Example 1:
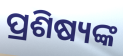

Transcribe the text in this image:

ପ୍ରଶିଷ୍ୟଙ୍କ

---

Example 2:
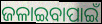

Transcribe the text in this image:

ଜଳାଇବାପାଇଁ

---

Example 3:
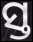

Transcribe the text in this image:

ସ୍ତ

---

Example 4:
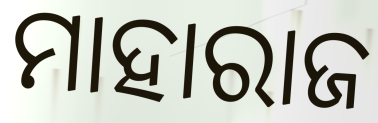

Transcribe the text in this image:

ମାହାରାଜ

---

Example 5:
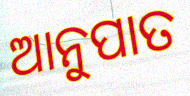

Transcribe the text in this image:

ଆନୁପାତ